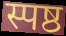
स्पष्ठ